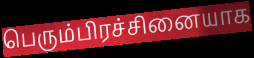
பெரும்பிரச்சினையாக